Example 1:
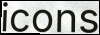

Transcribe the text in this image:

icons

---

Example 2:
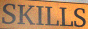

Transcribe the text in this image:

SKILLS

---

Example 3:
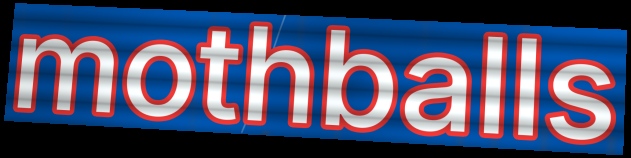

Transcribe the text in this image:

mothballs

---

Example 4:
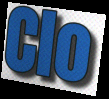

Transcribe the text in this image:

Clo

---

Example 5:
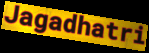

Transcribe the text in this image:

Jagadhatri